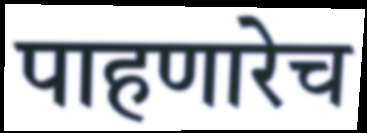
पाहणारेच